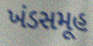
ખંડસમૂહ